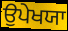
ਉਪੇਖਯਾ